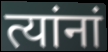
त्यांनां